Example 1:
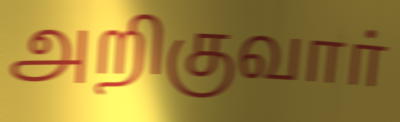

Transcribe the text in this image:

அறிகுவார்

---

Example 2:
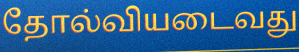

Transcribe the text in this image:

தோல்வியடைவது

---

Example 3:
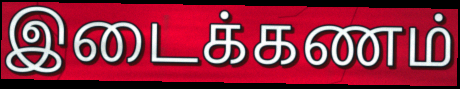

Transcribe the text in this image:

இடைக்கணம்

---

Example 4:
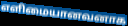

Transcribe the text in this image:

எளிமையானவனாக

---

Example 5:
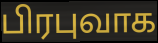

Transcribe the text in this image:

பிரபுவாக